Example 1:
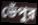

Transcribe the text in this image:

ভেঁপুর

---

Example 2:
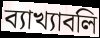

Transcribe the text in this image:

ব্যাখ্যাবলি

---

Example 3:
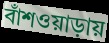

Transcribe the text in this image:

বাঁশওয়াড়ায়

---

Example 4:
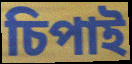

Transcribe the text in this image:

চিপাই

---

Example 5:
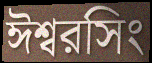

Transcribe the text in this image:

ঈশ্বরসিং